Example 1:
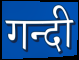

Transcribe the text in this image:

गन्दी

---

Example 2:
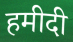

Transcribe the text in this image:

हमीदी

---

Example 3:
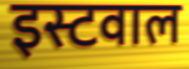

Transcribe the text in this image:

इस्टवाल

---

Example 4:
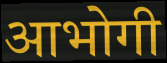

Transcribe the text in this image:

आभोगी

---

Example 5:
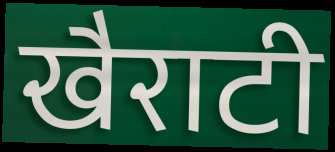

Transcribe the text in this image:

खैराटी